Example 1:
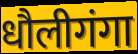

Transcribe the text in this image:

धौलीगंगा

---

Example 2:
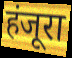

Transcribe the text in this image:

हंजूरा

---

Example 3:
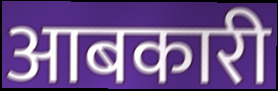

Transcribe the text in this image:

आबकारी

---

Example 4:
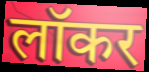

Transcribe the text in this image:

लॉकर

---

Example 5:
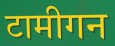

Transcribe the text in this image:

टामीगन